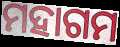
ମହାଗମ